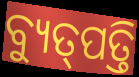
ବ୍ୟୁତ୍‌ପତ୍ତି